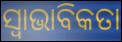
ସ୍ବାଭାବିକତା